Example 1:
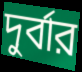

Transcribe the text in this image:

দুর্বার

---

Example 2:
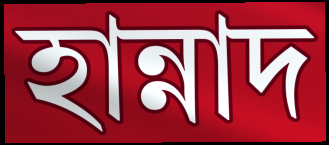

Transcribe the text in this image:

হান্নাদ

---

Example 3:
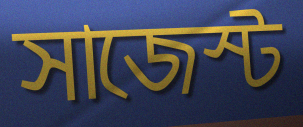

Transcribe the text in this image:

সাজেস্ট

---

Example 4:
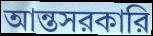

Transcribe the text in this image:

আন্তসরকারি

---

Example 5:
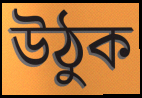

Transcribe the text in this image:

উঠুক